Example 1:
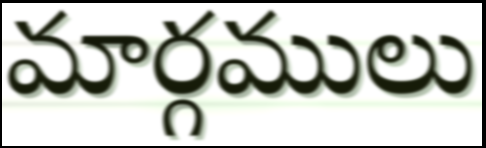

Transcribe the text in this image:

మార్గములు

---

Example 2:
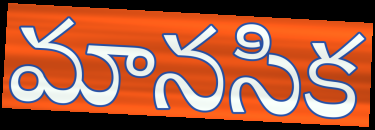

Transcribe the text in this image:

మానసిక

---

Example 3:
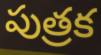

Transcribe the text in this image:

పుత్రక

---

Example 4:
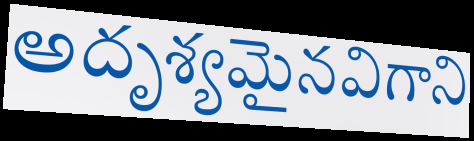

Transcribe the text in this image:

అదృశ్యమైనవిగాని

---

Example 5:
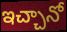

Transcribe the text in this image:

ఇచ్చానో